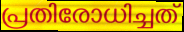
പ്രതിരോധിച്ചത്